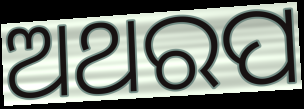
ଅଥରପ